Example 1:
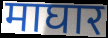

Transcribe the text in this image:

माघार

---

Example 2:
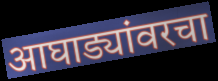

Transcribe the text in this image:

आघाड्यांवरचा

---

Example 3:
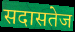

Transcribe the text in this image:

सदासतेज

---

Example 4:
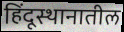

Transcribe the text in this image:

हिंदूस्थानातील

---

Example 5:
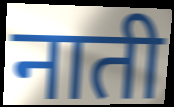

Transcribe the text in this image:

नाती